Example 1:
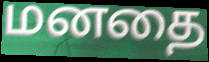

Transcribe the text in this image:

மனதை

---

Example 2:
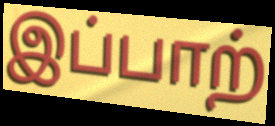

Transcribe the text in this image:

இப்பாற்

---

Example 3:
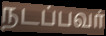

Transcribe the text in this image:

நடப்பவர்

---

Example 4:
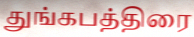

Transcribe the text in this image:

துங்கபத்திரை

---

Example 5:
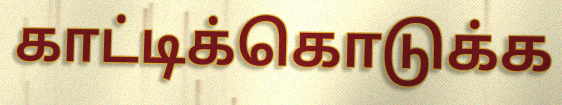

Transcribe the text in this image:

காட்டிக்கொடுக்க